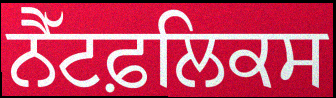
ਨੈੱਟਫ਼ਲਿਕਸ